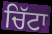
ਚਿੱਟਾ